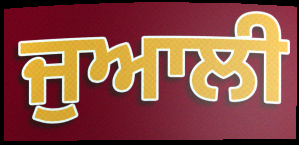
ਜੁਆਲੀ